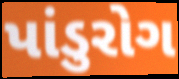
પાંડુરોગ